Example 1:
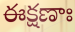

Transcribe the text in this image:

ఈక్షణాః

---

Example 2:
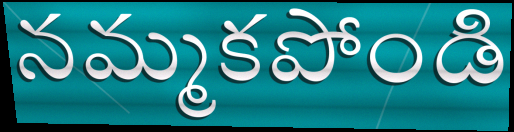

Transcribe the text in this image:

నమ్మకపోండి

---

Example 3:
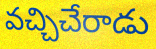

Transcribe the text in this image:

వచ్చిచేరాడు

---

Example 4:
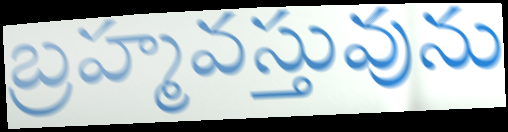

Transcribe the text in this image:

బ్రహ్మవస్తువును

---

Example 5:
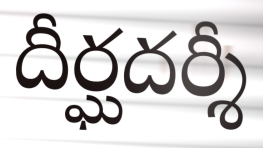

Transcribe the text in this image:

దీర్ఘదర్శీ